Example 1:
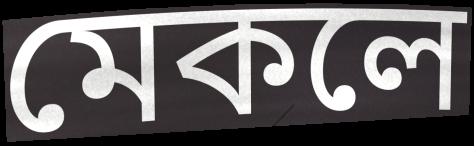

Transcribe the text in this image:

মেকলে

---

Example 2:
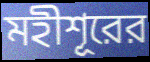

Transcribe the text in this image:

মহীশূরের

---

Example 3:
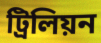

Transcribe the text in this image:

ট্রিলিয়ন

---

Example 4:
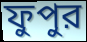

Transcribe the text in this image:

ফুপুর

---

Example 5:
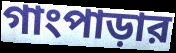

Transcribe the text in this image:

গাংপাড়ার